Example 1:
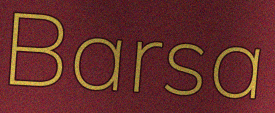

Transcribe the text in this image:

Barsa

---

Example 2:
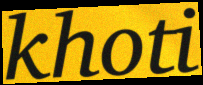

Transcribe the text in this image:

khoti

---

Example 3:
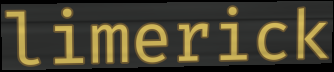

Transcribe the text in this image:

limerick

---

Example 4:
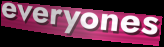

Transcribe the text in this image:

everyones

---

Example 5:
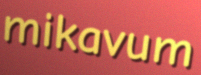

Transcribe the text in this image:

mikavum